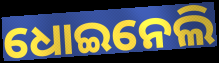
ଧୋଇନେଲି